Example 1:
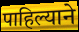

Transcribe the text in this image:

पाहिल्याने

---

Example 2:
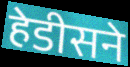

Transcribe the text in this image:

हेडीसने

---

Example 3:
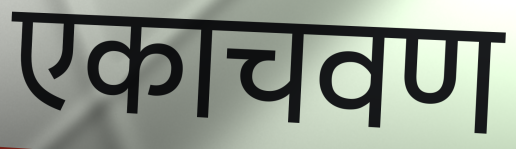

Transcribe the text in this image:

एकाचवण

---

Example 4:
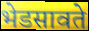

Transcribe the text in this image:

भेडसावते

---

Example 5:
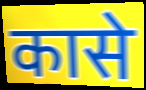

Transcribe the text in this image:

कासे